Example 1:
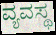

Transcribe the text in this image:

ವ್ಯವಸ್ಥ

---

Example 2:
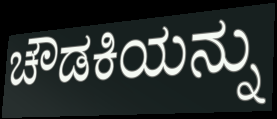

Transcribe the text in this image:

ಚೌಡಕಿಯನ್ನು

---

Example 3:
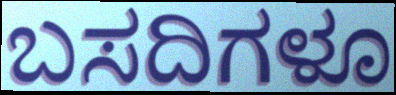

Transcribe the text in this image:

ಬಸದಿಗಳೂ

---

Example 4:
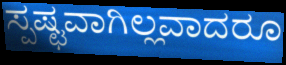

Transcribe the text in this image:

ಸ್ಪಷ್ಟವಾಗಿಲ್ಲವಾದರೂ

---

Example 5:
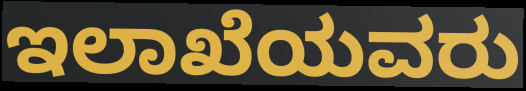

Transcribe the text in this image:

ಇಲಾಖೆಯವರು